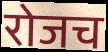
रोजच